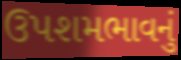
ઉપશમભાવનું